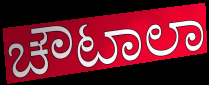
ಚೌಟಾಲಾ